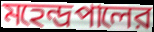
মহেন্দ্রপালের